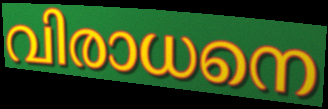
വിരാധനെ